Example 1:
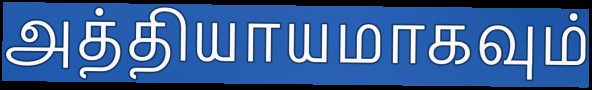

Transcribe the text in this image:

அத்தியாயமாகவும்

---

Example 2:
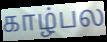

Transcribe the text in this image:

காழ்பல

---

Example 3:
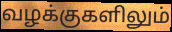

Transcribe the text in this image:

வழக்குகளிலும்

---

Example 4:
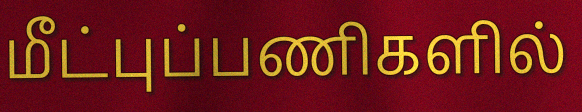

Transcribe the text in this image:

மீட்புப்பணிகளில்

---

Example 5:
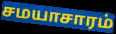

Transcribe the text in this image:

சமயாசாரம்